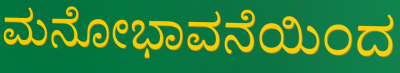
ಮನೋಭಾವನೆಯಿಂದ